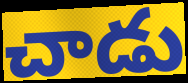
చాడు